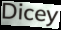
Dicey